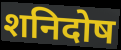
शनिदोष